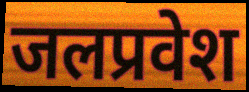
जलप्रवेश